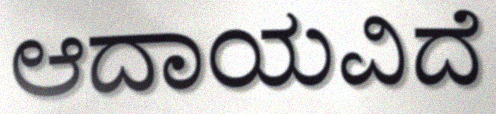
ಆದಾಯವಿದೆ